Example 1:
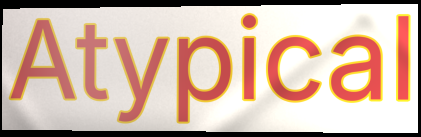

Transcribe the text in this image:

Atypical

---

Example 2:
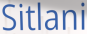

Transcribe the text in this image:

Sitlani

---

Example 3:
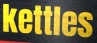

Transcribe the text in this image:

kettles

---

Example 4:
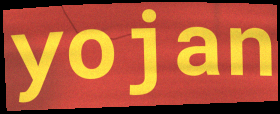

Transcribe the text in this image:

yojan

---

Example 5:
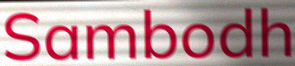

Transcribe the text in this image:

Sambodh